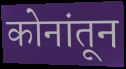
कोनांतून